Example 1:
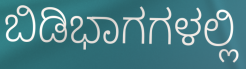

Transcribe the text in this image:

ಬಿಡಿಭಾಗಗಳಲ್ಲಿ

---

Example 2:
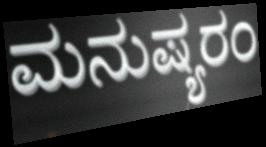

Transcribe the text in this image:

ಮನುಷ್ಯರಂ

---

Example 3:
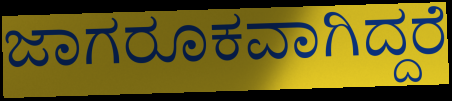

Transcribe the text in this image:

ಜಾಗರೂಕವಾಗಿದ್ದರೆ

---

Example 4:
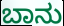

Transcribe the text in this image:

ಬಾನು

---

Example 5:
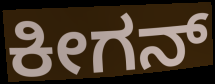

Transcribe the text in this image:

ಕೀಗನ್